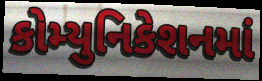
કોમ્યુનિકેશનમાં